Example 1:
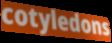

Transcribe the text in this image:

cotyledons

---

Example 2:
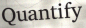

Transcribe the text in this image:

Quantify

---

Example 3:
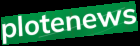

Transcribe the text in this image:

plotenews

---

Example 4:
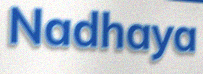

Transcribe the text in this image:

Nadhaya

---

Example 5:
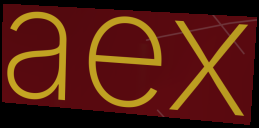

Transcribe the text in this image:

aex